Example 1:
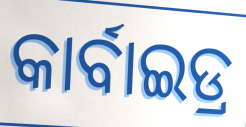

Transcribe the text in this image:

କାର୍ବାଇଡ୍ର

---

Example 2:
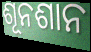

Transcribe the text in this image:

ଶୂନଶାନ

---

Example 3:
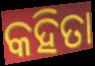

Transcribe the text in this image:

କହିତା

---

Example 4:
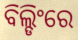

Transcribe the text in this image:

ବିଲ୍ଡିଂରେ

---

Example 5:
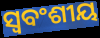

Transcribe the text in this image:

ସ୍ଵବଂଶୀୟ